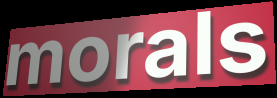
morals